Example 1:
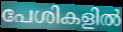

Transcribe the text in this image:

പേശികളിൽ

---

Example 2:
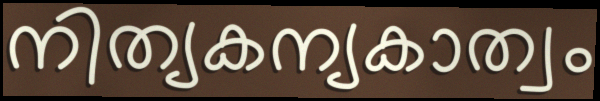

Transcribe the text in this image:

നിത്യകന്യകാത്വം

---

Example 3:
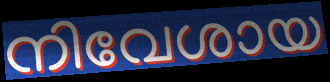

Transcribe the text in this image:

നിവേശായ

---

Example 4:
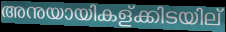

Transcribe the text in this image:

അനുയായികള്ക്കിടയില്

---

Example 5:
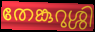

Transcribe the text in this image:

തേങ്കുറുശ്ശി